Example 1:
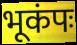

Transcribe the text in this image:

भूकंपः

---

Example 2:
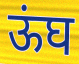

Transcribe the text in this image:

ऊंघ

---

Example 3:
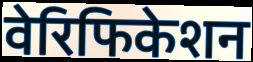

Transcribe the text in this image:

वेरिफिकेशन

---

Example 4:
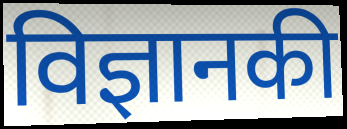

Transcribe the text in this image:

विज्ञानकी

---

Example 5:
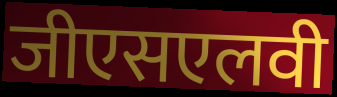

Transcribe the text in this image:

जीएसएलवी